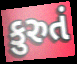
કુરુતં